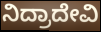
ನಿದ್ರಾದೇವಿ